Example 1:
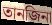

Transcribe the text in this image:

তানজিনা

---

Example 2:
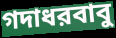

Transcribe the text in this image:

গদাধরবাবু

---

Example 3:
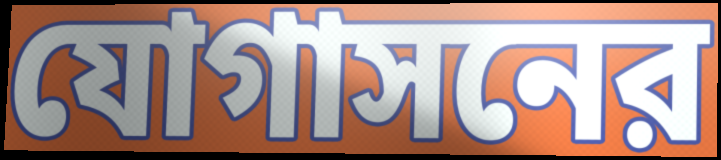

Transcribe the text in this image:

যোগাসনের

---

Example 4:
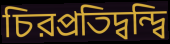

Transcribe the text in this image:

চিরপ্রতিদ্বন্দ্বি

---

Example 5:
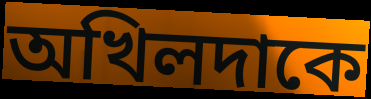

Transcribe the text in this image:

অখিলদাকে